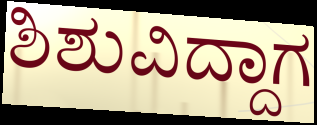
ಶಿಶುವಿದ್ದಾಗ